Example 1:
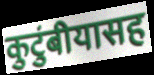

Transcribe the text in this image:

कुटुंबीयासह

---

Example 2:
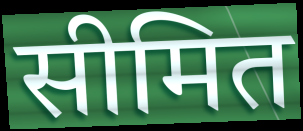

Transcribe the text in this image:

सीमित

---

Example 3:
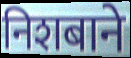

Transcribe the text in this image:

निशबाने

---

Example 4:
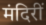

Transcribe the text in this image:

मंदिरीं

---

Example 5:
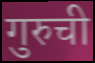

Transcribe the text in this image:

गुरुची